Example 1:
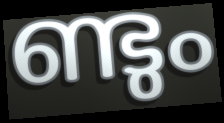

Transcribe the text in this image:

ണ്ടും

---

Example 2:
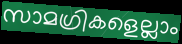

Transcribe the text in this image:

സാമഗ്രികളെല്ലാം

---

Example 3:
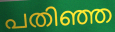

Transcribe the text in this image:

പതിഞ്ഞ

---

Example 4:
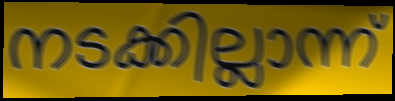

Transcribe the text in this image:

നടക്കില്ലാന്ന്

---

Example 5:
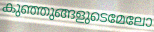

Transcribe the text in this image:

കുഞ്ഞുങ്ങളുടെമേലോ